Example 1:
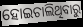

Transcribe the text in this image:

ହୋଇଚାଲିଥିବାରୁ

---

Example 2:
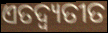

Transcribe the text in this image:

ଏତଦ୍ବ୍ୟତୀତ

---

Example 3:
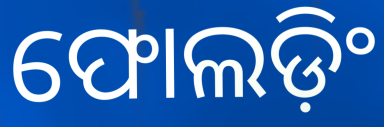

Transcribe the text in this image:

ଫୋଲଡ଼ିଂ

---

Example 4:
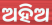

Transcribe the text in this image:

ଅହିଅ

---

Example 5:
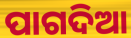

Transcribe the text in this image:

ପାଗଦିଆ